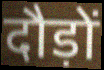
दौड़ों